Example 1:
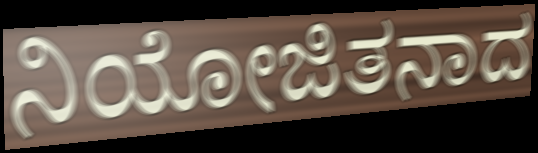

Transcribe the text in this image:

ನಿಯೋಜಿತನಾದ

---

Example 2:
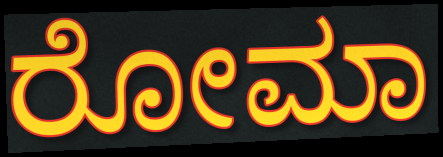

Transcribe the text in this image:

ರೋಮಾ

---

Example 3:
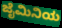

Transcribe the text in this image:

ಜೈಮಿನಿಯ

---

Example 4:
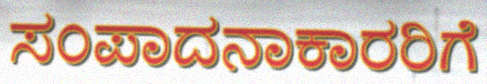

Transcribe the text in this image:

ಸಂಪಾದನಾಕಾರರಿಗೆ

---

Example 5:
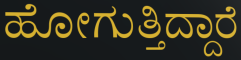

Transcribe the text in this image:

ಹೋಗುತ್ತಿದ್ದಾರೆ